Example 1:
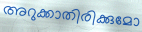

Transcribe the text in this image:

അറുക്കാതിരിക്കുമോ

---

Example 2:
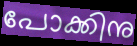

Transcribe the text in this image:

പോക്കിനു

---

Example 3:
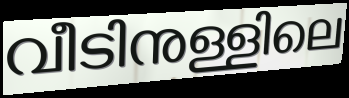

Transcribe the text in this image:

വീടിനുള്ളിലെ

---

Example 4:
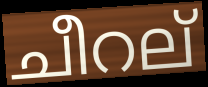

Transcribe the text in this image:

ചീറല്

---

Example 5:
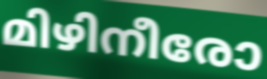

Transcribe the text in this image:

മിഴിനീരോ